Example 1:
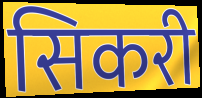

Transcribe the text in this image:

सिकरी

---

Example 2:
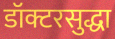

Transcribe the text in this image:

डॉक्टरसुद्धा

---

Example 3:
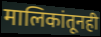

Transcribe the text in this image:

मालिकांतूनही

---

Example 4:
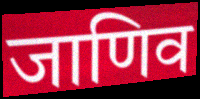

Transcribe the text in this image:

जाणिव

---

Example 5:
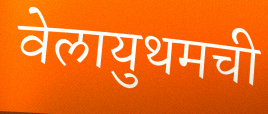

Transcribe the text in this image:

वेलायुथमची